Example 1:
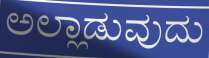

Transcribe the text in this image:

ಅಲ್ಲಾಡುವುದು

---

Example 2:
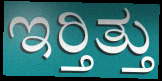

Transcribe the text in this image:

ಇರ್‍ತಿತ್ತು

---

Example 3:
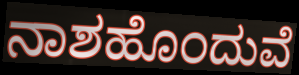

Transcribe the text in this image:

ನಾಶಹೊಂದುವೆ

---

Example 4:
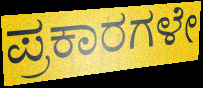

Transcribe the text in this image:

ಪ್ರಕಾರಗಳೇ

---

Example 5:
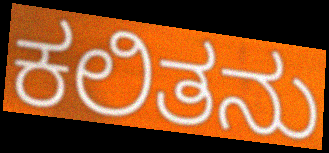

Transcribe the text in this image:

ಕಲಿತನು